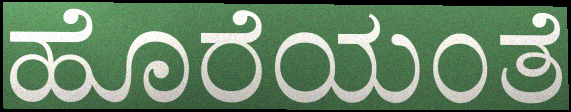
ಹೊರೆಯಂತೆ